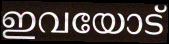
ഇവയോട്